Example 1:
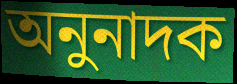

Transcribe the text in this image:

অনুনাদক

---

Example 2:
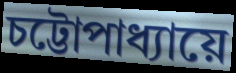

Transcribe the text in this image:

চট্টোপাধ্যায়ে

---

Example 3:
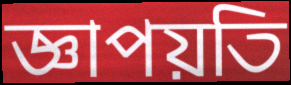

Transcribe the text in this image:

জ্ঞাপয়তি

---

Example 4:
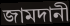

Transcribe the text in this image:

জামদানী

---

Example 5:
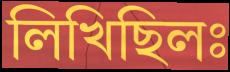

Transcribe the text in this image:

লিখিছিলঃ